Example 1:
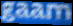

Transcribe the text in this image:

gaam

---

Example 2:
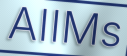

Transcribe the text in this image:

AIIMs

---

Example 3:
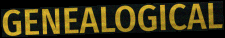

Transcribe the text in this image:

GENEALOGICAL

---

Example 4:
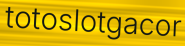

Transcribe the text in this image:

totoslotgacor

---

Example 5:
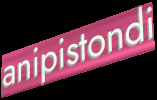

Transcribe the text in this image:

anipistondi